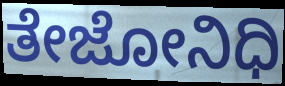
ತೇಜೋನಿಧಿ